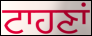
ਟਾਹਣਾਂ